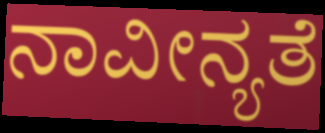
ನಾವೀನ್ಯತೆ